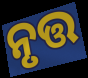
ନୃତ୍ତ